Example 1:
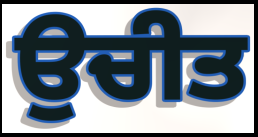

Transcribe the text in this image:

ਉਚੀਤ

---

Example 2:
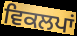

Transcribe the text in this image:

ਵਿਕਲਪਾਂ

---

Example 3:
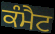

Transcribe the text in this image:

ਕੰਮੈਟ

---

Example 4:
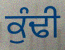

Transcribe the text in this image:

ਕੁੰਢੀ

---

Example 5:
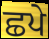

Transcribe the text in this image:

ਛਪੇ